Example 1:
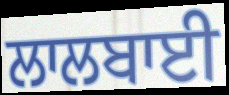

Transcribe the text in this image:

ਲਾਲਬਾਈ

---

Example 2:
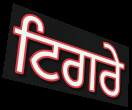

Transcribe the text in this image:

ਟਿਗਰੇ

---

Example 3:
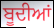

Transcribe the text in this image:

ਬੂਦੀਆਂ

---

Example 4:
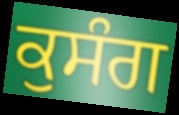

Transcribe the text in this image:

ਕੁਸੰਗ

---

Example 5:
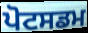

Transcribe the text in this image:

ਪੋਟਸਡਮ